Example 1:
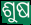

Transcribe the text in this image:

ଶୁଷ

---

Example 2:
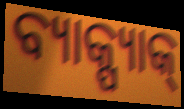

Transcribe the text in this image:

ବ୍ୟାକ୍ପ୍ୟାକ୍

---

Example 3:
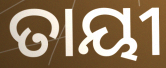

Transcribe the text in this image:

ତାୟୀ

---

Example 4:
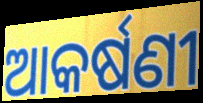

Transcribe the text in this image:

ଆକର୍ଷଣୀ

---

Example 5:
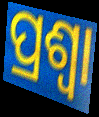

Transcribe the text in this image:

ପ୍ରଶ୍ଵା